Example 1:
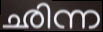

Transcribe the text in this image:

ഛിന്ന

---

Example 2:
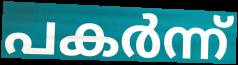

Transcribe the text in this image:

പകർന്ന്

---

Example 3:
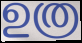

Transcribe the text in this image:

ഉത്ര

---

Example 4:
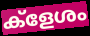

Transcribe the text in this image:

ക്ളേശം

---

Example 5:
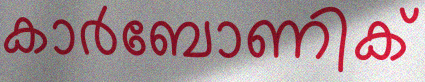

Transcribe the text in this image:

കാർബോണിക്